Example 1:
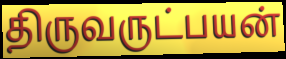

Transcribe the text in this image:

திருவருட்பயன்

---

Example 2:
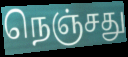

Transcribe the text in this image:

நெஞ்சது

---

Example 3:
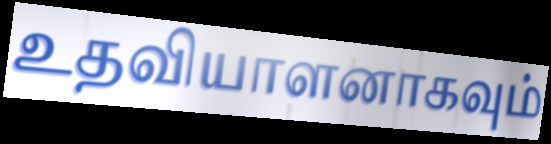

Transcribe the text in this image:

உதவியாளனாகவும்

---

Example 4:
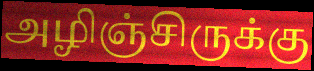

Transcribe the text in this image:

அழிஞ்சிருக்கு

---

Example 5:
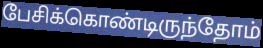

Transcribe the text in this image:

பேசிக்கொண்டிருந்தோம்